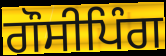
ਗੌਸੀਪਿੰਗ